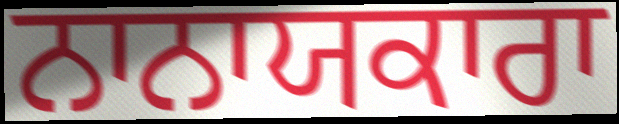
ਨਾਨਾਯਕਾਰਾ